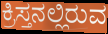
ಕ್ರಿಸ್ತನಲ್ಲಿರುವ